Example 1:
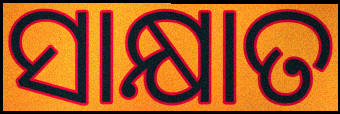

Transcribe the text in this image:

ସାକ୍ଷାତ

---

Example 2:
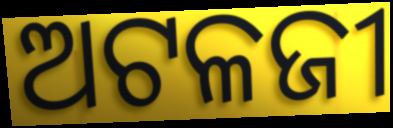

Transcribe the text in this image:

ଅଟଳଜୀ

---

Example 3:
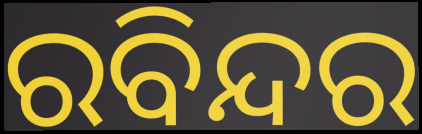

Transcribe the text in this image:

ରବିନ୍ଦର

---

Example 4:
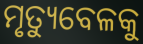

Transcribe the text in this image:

ମୃତ୍ୟୁବେଳକୁ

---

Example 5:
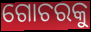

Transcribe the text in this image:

ଗୋଚରକୁ